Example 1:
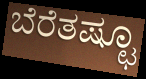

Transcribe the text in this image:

ಬೆರೆತಷ್ಟೂ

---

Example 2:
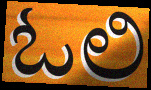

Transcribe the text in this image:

ಓಲಿ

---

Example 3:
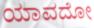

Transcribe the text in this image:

ಯಾವದೋ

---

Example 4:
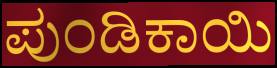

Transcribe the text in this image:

ಪುಂಡಿಕಾಯಿ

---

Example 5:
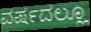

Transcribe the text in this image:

ವರ್ಷದಲ್ಲೂ